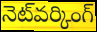
నెట్‌వర్కింగ్